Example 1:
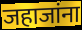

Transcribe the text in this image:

जहाजांना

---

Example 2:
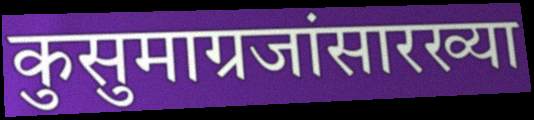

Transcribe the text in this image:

कुसुमाग्रजांसारख्या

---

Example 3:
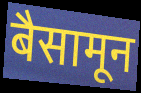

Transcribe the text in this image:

बैसामून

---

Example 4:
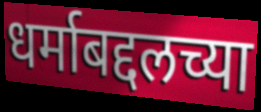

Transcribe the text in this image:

धर्माबद्दलच्या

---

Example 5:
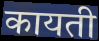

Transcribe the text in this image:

कायती